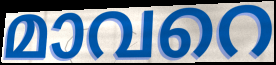
മാവറെ